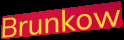
Brunkow